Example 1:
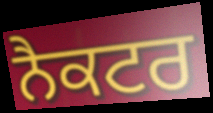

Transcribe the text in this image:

ਨੈਕਟਰ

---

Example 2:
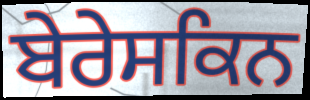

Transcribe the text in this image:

ਬੇਰੇਸਕਿਨ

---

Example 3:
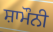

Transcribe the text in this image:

ਸ਼ਾਮੌਨੀ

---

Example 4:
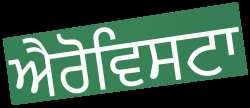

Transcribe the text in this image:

ਐਰੋਵਿਸਟਾ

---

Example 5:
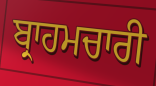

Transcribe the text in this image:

ਬ੍ਰਾਹਮਚਾਰੀ